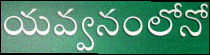
యవ్వనంలోనో